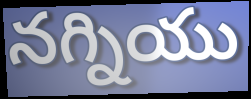
నగ్నియు